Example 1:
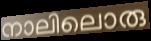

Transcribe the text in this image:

നാലിലൊരു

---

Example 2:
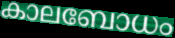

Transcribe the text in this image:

കാലബോധം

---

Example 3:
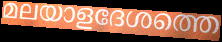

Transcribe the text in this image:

മലയാളദേശത്തെ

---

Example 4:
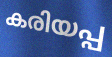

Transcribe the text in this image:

കരിയപ്പ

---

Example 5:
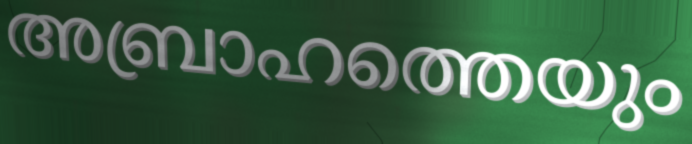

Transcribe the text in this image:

അബ്രാഹത്തെയും